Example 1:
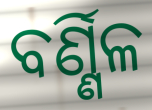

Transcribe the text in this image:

ବର୍ଣ୍ଣିଳ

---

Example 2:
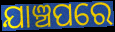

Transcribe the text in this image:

ଯାଞ୍ଚପରେ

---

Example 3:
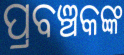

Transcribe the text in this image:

ପ୍ରବଞ୍ଚକଙ୍କ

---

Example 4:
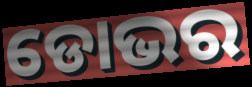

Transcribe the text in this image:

ଡୋଭର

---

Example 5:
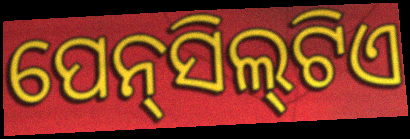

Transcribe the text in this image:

ପେନ୍‍ସିଲ୍‍ଟିଏ